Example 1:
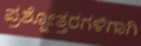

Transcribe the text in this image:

ಪ್ರಶ್ನೋತ್ತರಗಳಿಗಾಗಿ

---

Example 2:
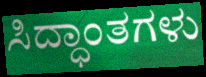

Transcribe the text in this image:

ಸಿದ್ಧಾಂತಗಳು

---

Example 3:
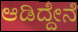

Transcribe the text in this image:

ಆಡಿದ್ದೇನೆ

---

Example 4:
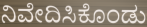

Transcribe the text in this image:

ನಿವೇದಿಸಿಕೊಂಡು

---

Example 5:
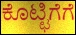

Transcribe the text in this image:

ಕೊಟ್ಟಿಗೆಗೆ